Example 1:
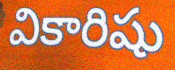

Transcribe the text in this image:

వికారిషు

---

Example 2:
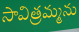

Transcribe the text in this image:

సావిత్రమ్మను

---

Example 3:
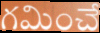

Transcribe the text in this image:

గమించే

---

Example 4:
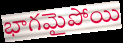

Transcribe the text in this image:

భాగమైపోయి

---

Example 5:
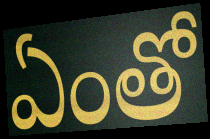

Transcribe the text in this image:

ఏంతో